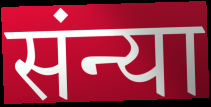
संन्या